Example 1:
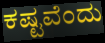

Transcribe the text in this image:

ಕಷ್ಟವೆಂದು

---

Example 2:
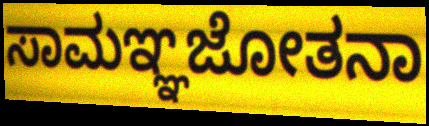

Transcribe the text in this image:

ಸಾಮಞ್ಞಜೋತನಾ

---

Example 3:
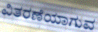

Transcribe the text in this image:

ವಿತರಣೆಯಾಗುವ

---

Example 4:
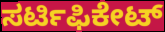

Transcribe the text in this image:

ಸರ್ಟಿಫಿಕೇಟ್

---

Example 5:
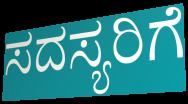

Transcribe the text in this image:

ಸದಸ್ಯರಿಗೆ